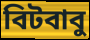
বিটবাবু